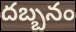
దబ్బనం